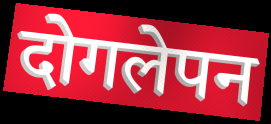
दोगलेपन